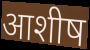
आशीष